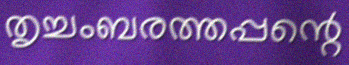
തൃച്ചംബരത്തപ്പന്റെ